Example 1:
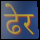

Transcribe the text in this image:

ढेर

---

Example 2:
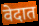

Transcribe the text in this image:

वेदात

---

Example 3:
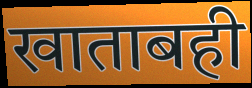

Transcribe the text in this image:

खाताबही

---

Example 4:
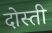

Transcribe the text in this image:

दोस्ती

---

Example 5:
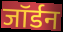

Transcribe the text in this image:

जॉर्डन